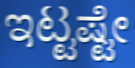
ಇಟ್ಟಷ್ಟೇ